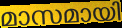
മാസമായി